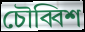
চৌব্বিশ